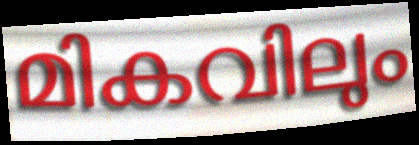
മികവിലും